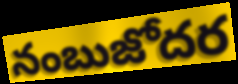
నంబుజోదర